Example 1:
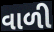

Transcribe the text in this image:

વાળી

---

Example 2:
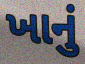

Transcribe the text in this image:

ખાનું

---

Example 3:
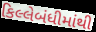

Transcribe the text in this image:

કિલ્લેબંધીમાંથી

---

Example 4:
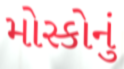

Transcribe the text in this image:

મોસ્કોનું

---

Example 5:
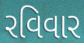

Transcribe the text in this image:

રવિવાર